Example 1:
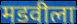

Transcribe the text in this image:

मडवीला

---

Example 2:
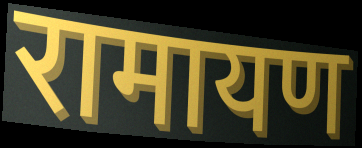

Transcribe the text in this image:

रामायण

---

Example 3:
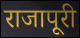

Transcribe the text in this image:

राजापूरी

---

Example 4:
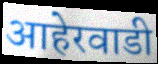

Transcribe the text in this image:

आहेरवाडी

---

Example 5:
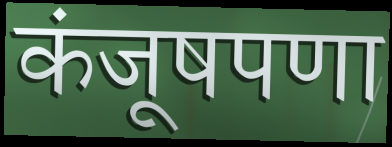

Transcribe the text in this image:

कंजूषपणा